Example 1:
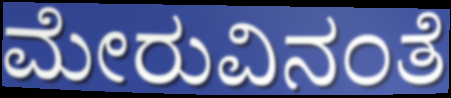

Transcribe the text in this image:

ಮೇರುವಿನಂತೆ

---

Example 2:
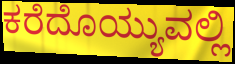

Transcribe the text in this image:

ಕರೆದೊಯ್ಯುವಲ್ಲಿ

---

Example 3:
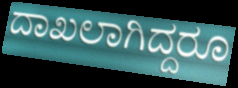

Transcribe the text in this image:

ದಾಖಲಾಗಿದ್ದರೂ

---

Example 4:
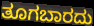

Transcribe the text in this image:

ತೂಗಬಾರದು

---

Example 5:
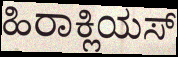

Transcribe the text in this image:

ಹಿರಾಕ್ಲಿಯಸ್